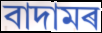
বাদামৰ